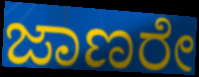
ಜಾಣರೇ